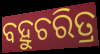
ବହୁଚରିତ୍ର